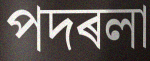
পদৰলা